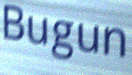
Bugun